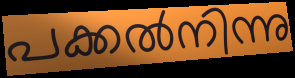
പക്കൽനിന്നു